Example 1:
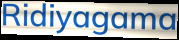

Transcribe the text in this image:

Ridiyagama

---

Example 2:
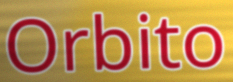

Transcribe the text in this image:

Orbito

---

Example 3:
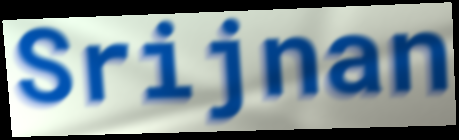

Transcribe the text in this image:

Srijnan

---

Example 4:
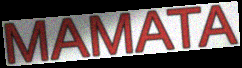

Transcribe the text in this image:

MAMATA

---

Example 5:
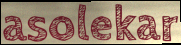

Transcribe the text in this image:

asolekar